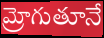
మ్రోగుతూనే